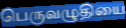
பெருவழுதியை